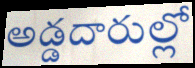
అడ్డదారుల్లో